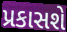
પ્રકાસશે